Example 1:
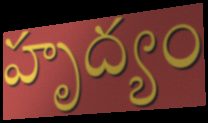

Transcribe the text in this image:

హృద్యం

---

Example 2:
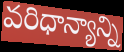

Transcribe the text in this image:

వరిధాన్యాన్ని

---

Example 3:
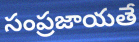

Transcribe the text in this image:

సంప్రజాయతే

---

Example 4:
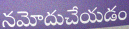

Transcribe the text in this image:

నమోదుచేయడం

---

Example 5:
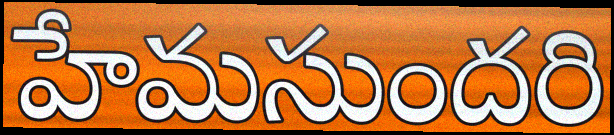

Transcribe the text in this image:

హేమసుందరి